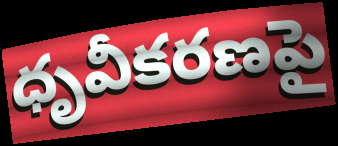
ధృవీకరణపై